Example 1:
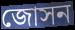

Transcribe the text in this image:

জোসন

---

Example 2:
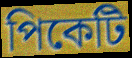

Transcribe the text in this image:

পিকেটি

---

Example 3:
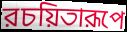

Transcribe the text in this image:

রচয়িতারূপে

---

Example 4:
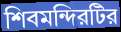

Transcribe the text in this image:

শিবমন্দিরটির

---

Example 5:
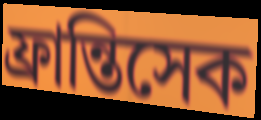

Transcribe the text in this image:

ফ্রান্তিসেক